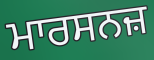
ਮਾਰਸਨਜ਼